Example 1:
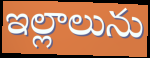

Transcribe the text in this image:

ఇల్లాలును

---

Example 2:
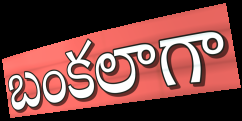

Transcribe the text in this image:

బంకలాగా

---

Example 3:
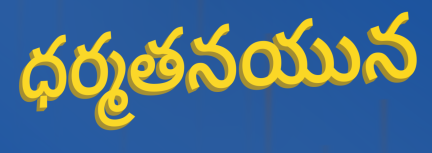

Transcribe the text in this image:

ధర్మతనయున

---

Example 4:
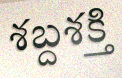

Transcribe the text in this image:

శబ్దశక్తి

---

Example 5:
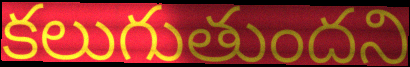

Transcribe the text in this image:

కలుగుతుందని